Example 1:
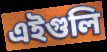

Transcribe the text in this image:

এইগুলি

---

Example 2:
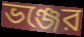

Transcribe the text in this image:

ভঞ্জের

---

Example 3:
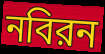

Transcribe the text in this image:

নবিরন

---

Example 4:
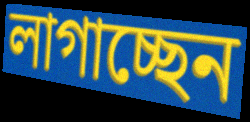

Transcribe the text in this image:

লাগাচ্ছেন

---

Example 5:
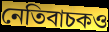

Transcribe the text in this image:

নেতিবাচকও